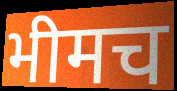
भीमच